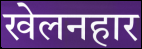
खेलनहार